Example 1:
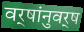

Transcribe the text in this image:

वर्षांनुवर्ष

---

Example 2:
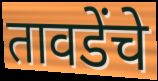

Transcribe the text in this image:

तावडेंचे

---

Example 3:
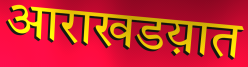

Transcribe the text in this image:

आराखडय़ात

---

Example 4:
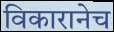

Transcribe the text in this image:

विकारानेच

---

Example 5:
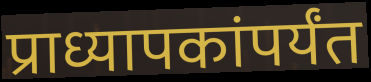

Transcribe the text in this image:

प्राध्यापकांपर्यंत